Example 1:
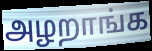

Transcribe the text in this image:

அழறாங்க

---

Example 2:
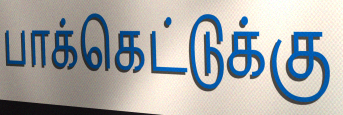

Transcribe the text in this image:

பாக்கெட்டுக்கு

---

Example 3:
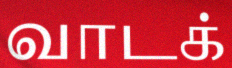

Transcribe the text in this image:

வாடக்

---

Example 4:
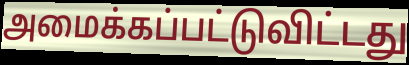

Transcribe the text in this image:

அமைக்கப்பட்டுவிட்டது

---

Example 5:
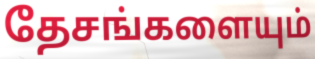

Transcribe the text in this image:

தேசங்களையும்